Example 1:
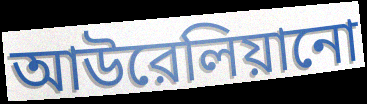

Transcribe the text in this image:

আউরেলিয়ানো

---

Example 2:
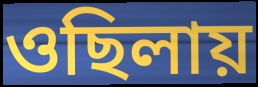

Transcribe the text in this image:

ওছিলায়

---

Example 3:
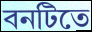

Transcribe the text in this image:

বনটিতে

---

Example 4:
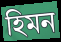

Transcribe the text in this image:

হিমন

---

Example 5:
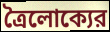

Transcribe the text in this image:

ত্রৈলোক্যের